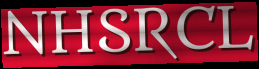
NHSRCL